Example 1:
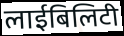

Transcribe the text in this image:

लाईबिलिटी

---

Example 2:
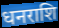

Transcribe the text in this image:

धनराशि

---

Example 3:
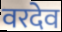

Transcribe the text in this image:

वरदेव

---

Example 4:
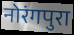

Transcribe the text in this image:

नोरंगपुरा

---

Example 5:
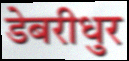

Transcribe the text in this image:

डेबरीधुर